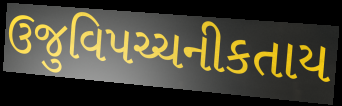
ઉજુવિપચ્ચનીકતાય